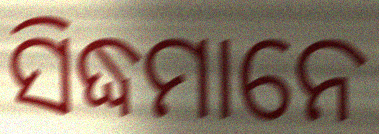
ସିଦ୍ଧମାନେ